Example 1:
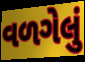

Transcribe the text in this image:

વળગેલું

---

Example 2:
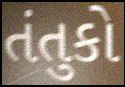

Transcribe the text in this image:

તંતુકો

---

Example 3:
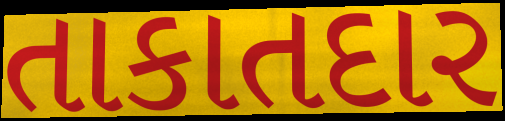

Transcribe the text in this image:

તાકાતદાર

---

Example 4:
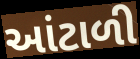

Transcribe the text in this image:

આંટાળી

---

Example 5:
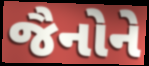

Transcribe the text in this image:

જૈનોને